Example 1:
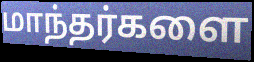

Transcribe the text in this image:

மாந்தர்களை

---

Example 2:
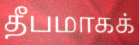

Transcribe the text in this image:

தீபமாகக்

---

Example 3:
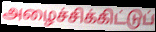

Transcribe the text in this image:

அழைச்சிக்கிட்டுப்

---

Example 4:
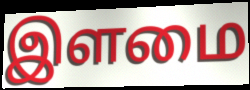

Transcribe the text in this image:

இளமை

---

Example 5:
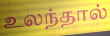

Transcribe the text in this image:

உலந்தால்